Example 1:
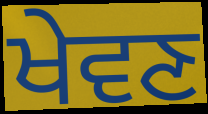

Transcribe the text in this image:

ਖੇਵਣ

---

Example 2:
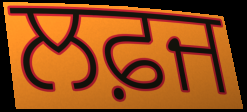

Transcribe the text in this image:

ਲਫ਼ਜ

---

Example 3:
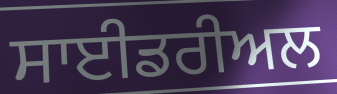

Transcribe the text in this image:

ਸਾਈਡਰੀਅਲ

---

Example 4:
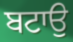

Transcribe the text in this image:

ਬਟਾਉ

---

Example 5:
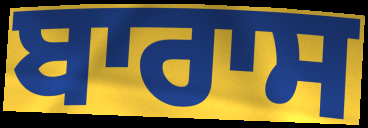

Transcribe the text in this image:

ਬਾਰਾਸ